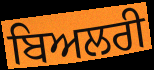
ਬਿਅਲਰੀ